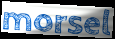
morsel